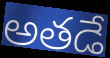
అతడే